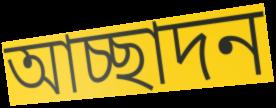
আচ্ছাদন